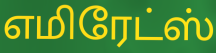
எமிரேட்ஸ்